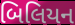
બિલિયન